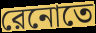
রেনোতে